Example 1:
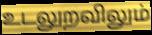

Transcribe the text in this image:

உடலுறவிலும்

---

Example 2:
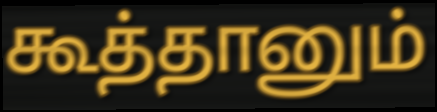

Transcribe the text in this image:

கூத்தானும்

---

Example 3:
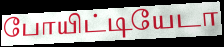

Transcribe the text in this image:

போயிட்டியேடா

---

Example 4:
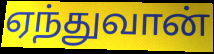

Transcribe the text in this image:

ஏந்துவான்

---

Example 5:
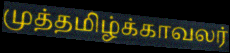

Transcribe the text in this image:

முத்தமிழ்க்காவலர்